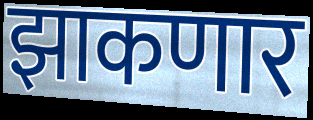
झाकणार